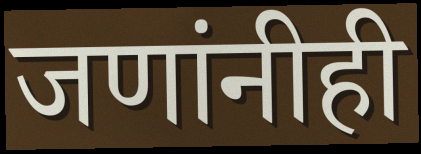
जणांनीही